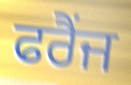
ਫਰੈਂਜ